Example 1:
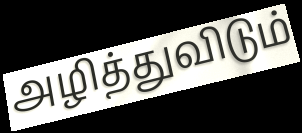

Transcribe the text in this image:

அழித்துவிடும்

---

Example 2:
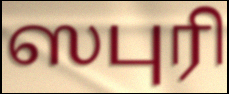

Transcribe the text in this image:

ஸபுரி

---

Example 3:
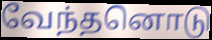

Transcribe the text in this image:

வேந்தனொடு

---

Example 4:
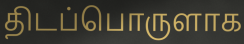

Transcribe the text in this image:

திடப்பொருளாக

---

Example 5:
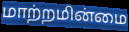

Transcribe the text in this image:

மாற்றமின்மை